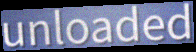
unloaded